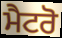
ਮੈਟਰੋ